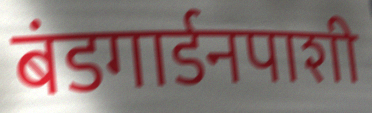
बंडगार्डनपाशी